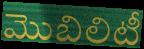
మొబిలిటీ